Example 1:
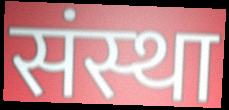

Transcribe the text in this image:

संस्‍था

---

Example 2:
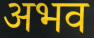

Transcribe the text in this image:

अभव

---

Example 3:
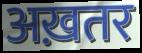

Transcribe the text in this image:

अख़तर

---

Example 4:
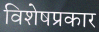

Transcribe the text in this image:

विशेषप्रकार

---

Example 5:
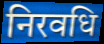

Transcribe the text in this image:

निरवधि